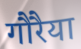
गौरैया